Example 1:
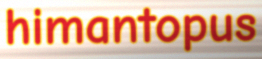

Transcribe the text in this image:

himantopus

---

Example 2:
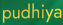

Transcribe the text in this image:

pudhiya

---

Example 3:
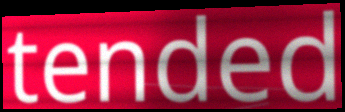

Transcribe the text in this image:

tended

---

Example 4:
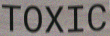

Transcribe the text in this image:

TOXIC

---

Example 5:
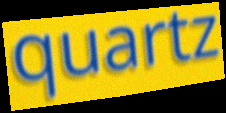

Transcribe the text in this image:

quartz